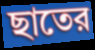
ছাতের